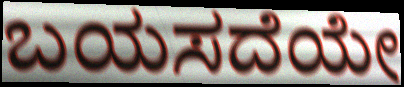
ಬಯಸದೆಯೇ